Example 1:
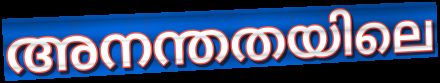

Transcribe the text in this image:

അനന്തതയിലെ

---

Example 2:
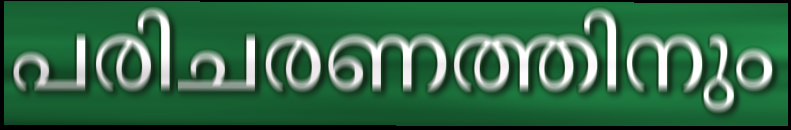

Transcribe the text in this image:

പരിചരണത്തിനും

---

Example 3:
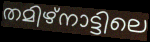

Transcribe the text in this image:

തമിഴ്നാട്ടിലെ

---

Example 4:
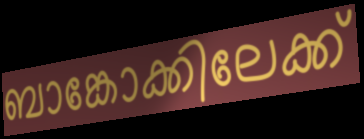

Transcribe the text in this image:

ബാങ്കോക്കിലേക്ക്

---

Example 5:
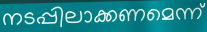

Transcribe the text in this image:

നടപ്പിലാക്കണമെന്ന്